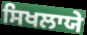
ਸਿਖਲਾਯੇ